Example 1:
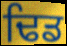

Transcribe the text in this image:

ਢਿਡ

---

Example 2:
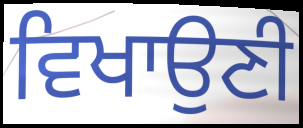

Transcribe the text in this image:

ਵਿਖਾਉਣੀ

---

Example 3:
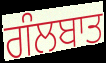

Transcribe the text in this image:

ਗੰਲਬਾਤ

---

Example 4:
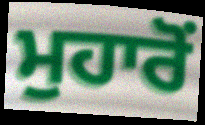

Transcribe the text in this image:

ਮੁਹਾਰੋਂ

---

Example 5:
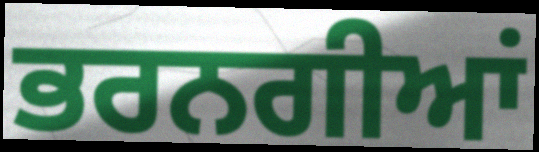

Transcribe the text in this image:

ਭਰਨਗੀਆਂ